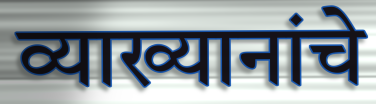
व्याख्यानांचे